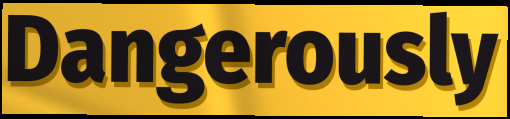
Dangerously